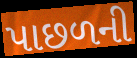
પાછળની